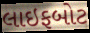
લાઇફબોટ